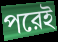
পরেই